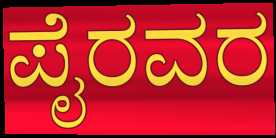
ಪೈರವರ